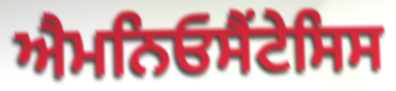
ਐਮਨਿਓਸੈਂਟੇਸਿਸ